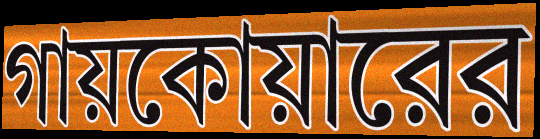
গায়কোয়ারের